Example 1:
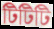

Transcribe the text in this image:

টিটিটি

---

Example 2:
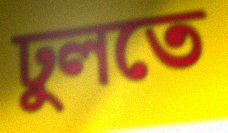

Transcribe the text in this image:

ঢুলতে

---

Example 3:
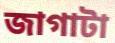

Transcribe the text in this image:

জাগাটা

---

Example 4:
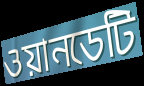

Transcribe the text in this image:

ওয়ানডেটি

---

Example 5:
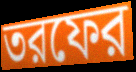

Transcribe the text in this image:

তরফের